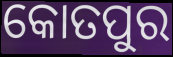
କୋତପୁର